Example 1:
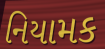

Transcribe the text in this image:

નિયામક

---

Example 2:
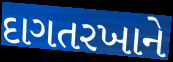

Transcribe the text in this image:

દાગતરખાને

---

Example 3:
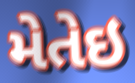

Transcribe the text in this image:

મેતેઇ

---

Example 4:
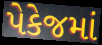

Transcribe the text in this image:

પેકેજમાં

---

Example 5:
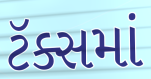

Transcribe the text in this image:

ટૅક્સમાં